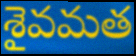
శైవమత